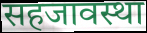
सहजावस्था